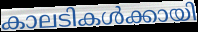
കാലടികൾക്കായി